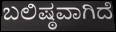
ಬಲಿಷ್ಠವಾಗಿದೆ